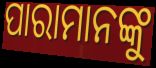
ପାରାମାନଙ୍କୁ